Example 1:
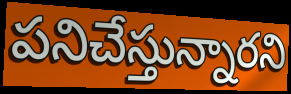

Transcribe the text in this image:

పనిచేస్తున్నారని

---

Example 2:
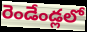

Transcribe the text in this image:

రెండేండ్లలో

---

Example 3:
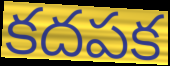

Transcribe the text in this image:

కదపక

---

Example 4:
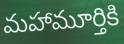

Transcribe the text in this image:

మహామూర్తికి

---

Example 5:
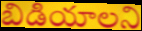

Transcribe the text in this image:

బిడియాలని